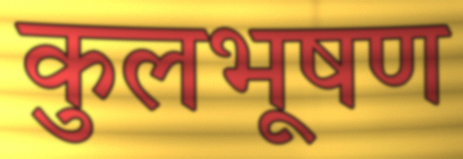
कुलभूषण